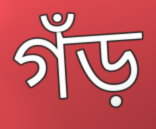
গঁড়